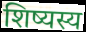
शिष्यस्य